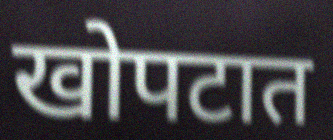
खोपटात